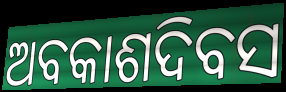
ଅବକାଶଦିବସ